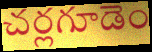
చర్లగూడెం